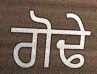
ਗੋਢੇ